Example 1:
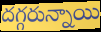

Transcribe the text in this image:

దగ్గరున్నాయి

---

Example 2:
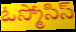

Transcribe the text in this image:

ఓస్మోసిస్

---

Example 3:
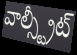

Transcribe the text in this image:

వాల్స్ట్రీట్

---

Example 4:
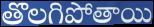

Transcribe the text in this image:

తొలగిపోతాయి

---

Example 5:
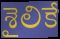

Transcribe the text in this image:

శైలికే